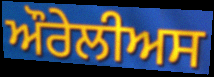
ਔਰੇਲੀਅਸ